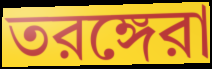
তরঙ্গেরা